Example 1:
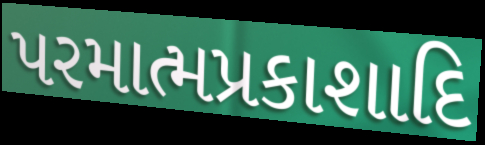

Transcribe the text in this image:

પરમાત્મપ્રકાશાદિ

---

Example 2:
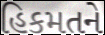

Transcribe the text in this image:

હિકમતને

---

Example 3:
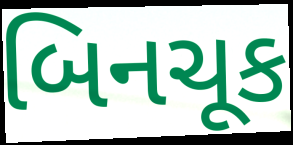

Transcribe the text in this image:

બિનચૂક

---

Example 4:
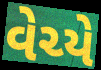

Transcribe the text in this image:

વેચ્યે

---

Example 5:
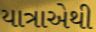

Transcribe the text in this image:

યાત્રાએથી